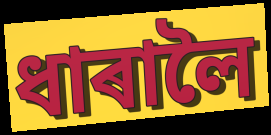
ধাৰালৈ